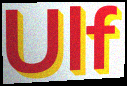
Ulf